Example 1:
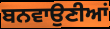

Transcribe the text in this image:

ਬਨਵਾਉਣੀਆਂ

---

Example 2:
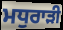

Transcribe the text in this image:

ਮਧੁਰਾੜੀ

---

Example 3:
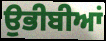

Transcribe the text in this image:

ਉਭੀਬੀਆਂ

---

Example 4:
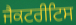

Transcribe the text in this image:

ਜੈਕਟਰੀਟਿਸ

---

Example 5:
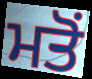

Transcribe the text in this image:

ਮਤੋਂ